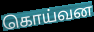
கொய்வன